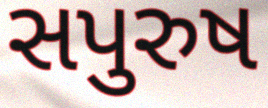
સપુરુષ